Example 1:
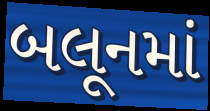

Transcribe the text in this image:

બલૂનમાં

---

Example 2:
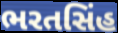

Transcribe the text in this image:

ભરતસિંહ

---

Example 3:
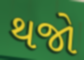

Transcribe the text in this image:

થજો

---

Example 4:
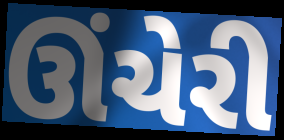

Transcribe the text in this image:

ઊંચેરી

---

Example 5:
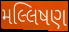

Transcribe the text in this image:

મલ્લિષણ